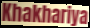
Khakhariya